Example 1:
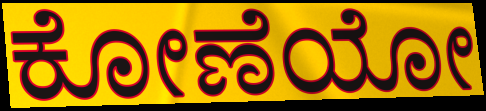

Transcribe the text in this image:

ಕೋಣೆಯೋ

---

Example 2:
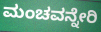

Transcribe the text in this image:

ಮಂಚವನ್ನೇರಿ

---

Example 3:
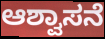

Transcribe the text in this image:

ಆಶ್ವಾಸನೆ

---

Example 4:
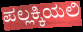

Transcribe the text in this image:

ಪಲ್ಲಕ್ಕಿಯಲಿ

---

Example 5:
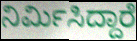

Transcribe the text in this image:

ನಿರ್ಮಿಸಿದ್ದಾರೆ